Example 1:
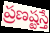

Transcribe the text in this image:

ప్రణష్టస్తే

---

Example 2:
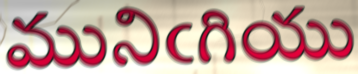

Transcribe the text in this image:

మునిఁగియు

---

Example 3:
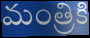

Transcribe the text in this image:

మంత్రికి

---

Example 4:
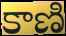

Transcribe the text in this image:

కాణి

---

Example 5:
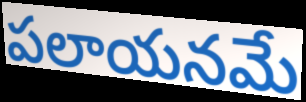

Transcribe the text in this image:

పలాయనమే